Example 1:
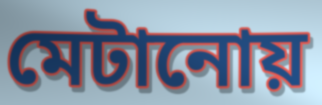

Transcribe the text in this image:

মেটানোয়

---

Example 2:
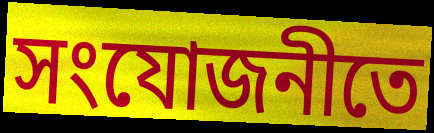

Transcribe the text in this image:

সংযোজনীতে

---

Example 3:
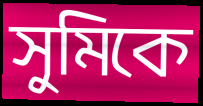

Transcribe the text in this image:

সুমিকে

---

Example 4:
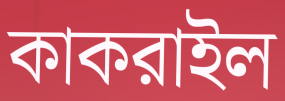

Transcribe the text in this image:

কাকরাইল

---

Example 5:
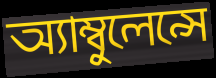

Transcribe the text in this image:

অ্যাম্বুলেন্সে